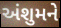
અંશુમને